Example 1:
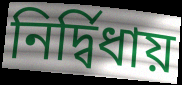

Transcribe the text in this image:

নির্দ্বিধায়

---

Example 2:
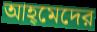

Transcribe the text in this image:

আহ্‌মেদের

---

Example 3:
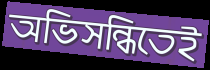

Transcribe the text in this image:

অভিসন্ধিতেই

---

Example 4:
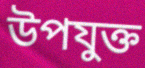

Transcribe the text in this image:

উপযুক্ত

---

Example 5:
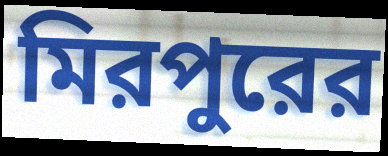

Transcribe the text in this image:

মিরপুরের